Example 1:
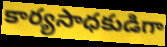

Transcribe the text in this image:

కార్యసాధకుడిగా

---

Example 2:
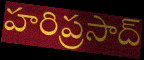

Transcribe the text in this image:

హరిప్రసాద్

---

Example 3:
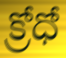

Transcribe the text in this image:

క్రోధో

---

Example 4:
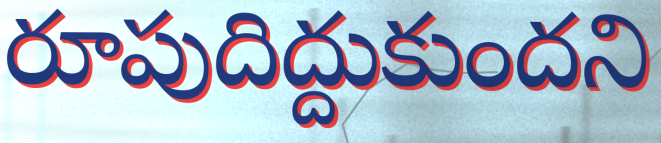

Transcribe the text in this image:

రూపుదిద్దుకుందని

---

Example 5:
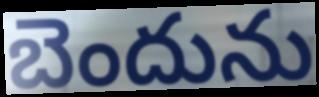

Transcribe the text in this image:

బెందును